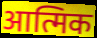
आत्मिक